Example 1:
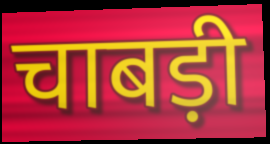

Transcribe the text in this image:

चाबड़ी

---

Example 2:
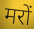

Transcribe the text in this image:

मरों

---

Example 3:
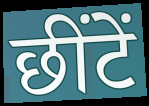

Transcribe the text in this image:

छींटें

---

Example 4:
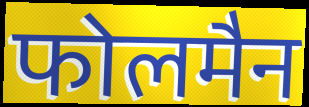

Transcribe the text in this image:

फोलमैन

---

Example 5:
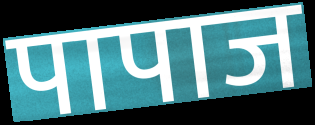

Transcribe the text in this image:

पापाज